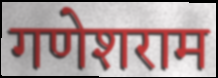
गणेशराम